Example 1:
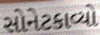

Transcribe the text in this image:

સોનેટકાવ્યો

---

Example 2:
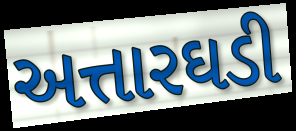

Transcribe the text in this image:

અત્તારઘડી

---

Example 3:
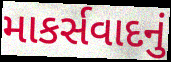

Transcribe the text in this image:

માકર્સવાદનું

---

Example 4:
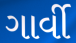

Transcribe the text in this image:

ગાર્વી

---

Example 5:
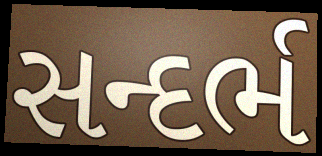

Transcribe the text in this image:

સન્દર્ભ